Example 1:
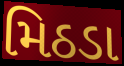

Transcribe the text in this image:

મિઠડા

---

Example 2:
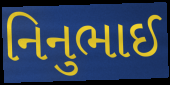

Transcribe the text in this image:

નિનુભાઈ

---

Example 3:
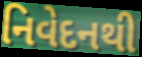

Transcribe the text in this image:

નિવેદનથી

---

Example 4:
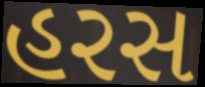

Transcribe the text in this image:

હરસ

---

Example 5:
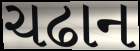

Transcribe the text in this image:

ચઢાન